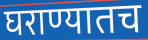
घराण्यातच